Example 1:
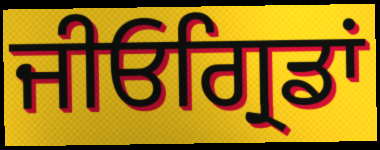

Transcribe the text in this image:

ਜੀਓਗ੍ਰਿਡਾਂ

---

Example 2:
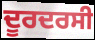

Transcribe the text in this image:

ਦੂਰਦਰਸੀ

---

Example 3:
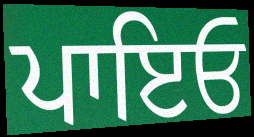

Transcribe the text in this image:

ਪਾਇਓ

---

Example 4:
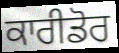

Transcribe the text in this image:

ਕਾਰੀਡੋਰ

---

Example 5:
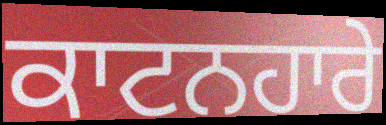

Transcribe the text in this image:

ਕਾਟਨਹਾਰੇ